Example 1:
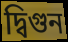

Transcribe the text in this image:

দ্বিগুন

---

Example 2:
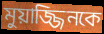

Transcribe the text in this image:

মুয়াজ্জিনকে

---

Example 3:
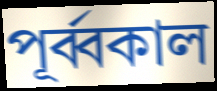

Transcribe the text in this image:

পূর্ব্বকাল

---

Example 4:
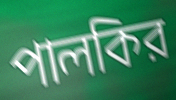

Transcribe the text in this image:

পালকির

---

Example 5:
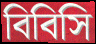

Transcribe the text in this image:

বিবিসি